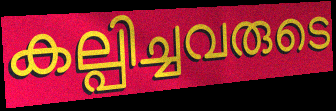
കല്പിച്ചവരുടെ